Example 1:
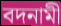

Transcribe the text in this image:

বদনামী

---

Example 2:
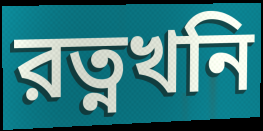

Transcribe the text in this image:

রত্নখনি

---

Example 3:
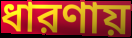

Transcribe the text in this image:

ধারণায়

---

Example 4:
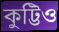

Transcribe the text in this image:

কুট্টিও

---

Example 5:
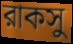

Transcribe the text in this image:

রাকসু